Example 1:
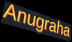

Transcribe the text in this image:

Anugraha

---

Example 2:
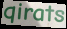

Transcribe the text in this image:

qirats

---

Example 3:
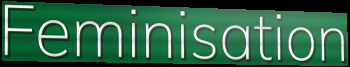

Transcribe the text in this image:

Feminisation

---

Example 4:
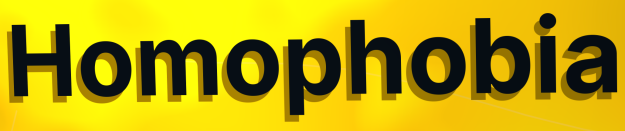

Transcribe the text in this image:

Homophobia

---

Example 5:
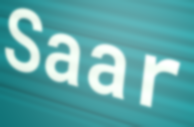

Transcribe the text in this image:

Saar